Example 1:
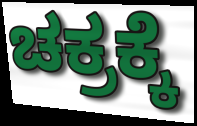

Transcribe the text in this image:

ಚಕ್ರಕ್ಕೆ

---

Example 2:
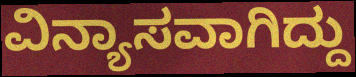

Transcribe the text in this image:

ವಿನ್ಯಾಸವಾಗಿದ್ದು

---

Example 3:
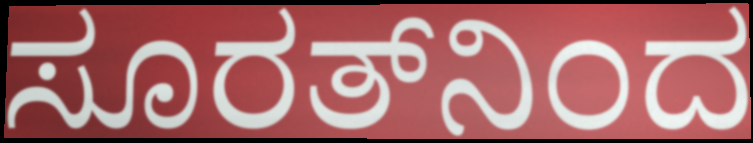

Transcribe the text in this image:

ಸೂರತ್‌ನಿಂದ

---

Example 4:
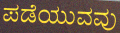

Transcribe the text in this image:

ಪಡೆಯುವವು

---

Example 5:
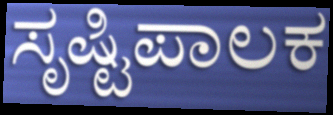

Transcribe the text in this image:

ಸೃಷ್ಟಿಪಾಲಕ